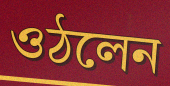
ওঠলেন